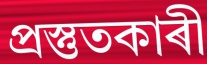
প্ৰস্তুতকাৰী